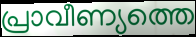
പ്രാവീണ്യത്തെ